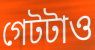
গেটটাও